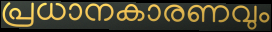
പ്രധാനകാരണവും